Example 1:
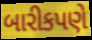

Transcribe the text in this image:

બારીકપણે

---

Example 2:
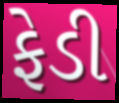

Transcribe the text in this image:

ફેડી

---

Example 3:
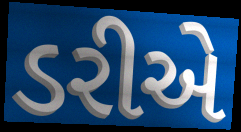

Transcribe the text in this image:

ડરીએ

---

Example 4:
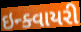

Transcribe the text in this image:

ઇન્ક્વાયરી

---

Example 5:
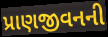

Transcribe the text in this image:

પ્રાણજીવનની